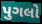
પુગલો